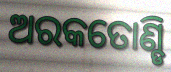
ଅରକତୋଣ୍ଡି